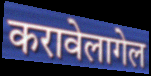
करावेलागेल